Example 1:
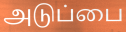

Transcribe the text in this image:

அடுப்பை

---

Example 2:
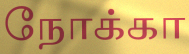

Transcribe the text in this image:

நோக்கா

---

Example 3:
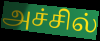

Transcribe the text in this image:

அச்சில்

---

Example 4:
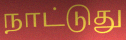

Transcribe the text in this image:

நாட்டுது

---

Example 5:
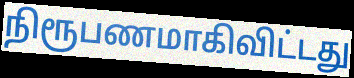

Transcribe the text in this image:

நிரூபணமாகிவிட்டது